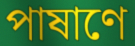
পাষাণে